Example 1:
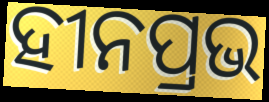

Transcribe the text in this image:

ହୀନପ୍ରଭ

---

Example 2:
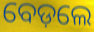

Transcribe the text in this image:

ବେଡ଼ଲେ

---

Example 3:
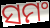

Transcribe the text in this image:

ସମଂ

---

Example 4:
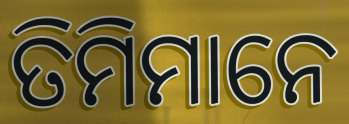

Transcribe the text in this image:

ତିମିମାନେ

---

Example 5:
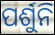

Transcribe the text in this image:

ପର୍ଶୁନି